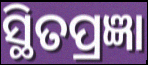
ସ୍ଥିତପ୍ରଜ୍ଞା